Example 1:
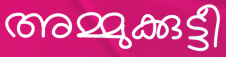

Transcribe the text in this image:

അമ്മുക്കുട്ടീ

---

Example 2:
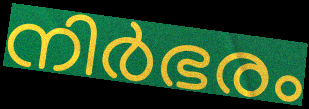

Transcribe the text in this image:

നിർഭരം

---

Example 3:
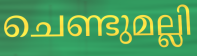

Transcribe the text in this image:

ചെണ്ടുമല്ലി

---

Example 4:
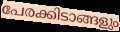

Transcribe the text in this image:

പേരക്കിടാങ്ങളും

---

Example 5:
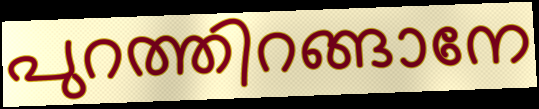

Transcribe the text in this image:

പുറത്തിറങ്ങാനേ